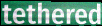
tethered